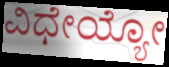
ವಿಧೇಯ್ಯೋ